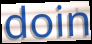
doin